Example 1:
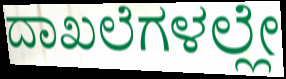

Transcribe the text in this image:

ದಾಖಲೆಗಳಲ್ಲೇ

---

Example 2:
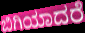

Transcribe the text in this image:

ಬಿಗಿಯಾದರೆ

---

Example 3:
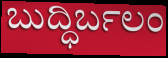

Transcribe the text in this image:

ಬುದ್ಧಿರ್ಬಲಂ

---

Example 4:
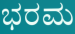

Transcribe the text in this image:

ಭರಮ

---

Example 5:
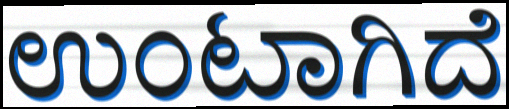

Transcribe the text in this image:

ಉಂಟಾಗಿದೆ